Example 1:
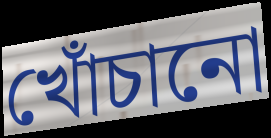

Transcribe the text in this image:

খোঁচানো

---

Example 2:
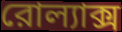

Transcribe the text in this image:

রোল্যাক্স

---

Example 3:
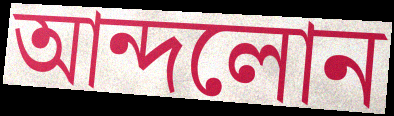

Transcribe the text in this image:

আন্দলোন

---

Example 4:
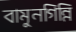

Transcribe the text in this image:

বামুনগিন্নি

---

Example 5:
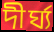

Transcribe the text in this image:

দীর্ঘ্য